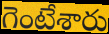
గెంటేశారు